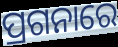
ପ୍ରଗନାରେ